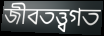
জীবতত্ত্বগত